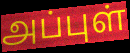
அப்புள்